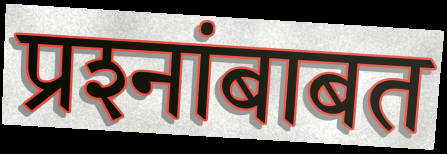
प्रश्‍नांबाबत